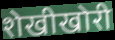
शेखीखोरी